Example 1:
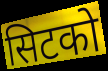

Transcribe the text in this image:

सिटको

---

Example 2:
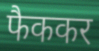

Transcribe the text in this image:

फैककर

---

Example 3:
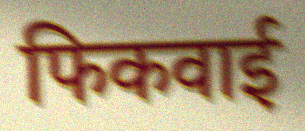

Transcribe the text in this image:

फिकवाई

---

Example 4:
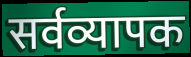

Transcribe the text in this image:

सर्वव्यापक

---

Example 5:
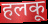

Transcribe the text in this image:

हलकू